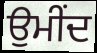
ਉਮੀਂਦ